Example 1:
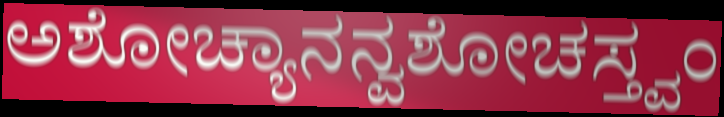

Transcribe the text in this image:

ಅಶೋಚ್ಯಾನನ್ವಶೋಚಸ್ತ್ವಂ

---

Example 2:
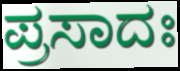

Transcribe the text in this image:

ಪ್ರಸಾದಃ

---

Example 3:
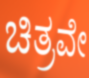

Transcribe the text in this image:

ಚಿತ್ರವೇ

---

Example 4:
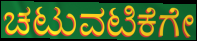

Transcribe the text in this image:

ಚಟುವಟಿಕೆಗೇ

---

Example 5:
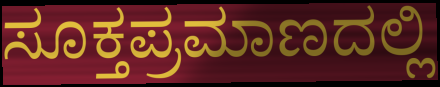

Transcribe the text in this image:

ಸೂಕ್ತಪ್ರಮಾಣದಲ್ಲಿ